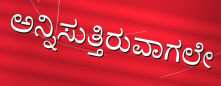
ಅನ್ನಿಸುತ್ತಿರುವಾಗಲೇ